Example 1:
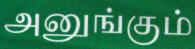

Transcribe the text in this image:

அனுங்கும்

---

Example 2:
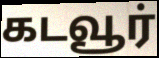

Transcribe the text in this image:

கடவூர்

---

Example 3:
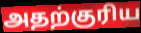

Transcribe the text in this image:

அதற்குரிய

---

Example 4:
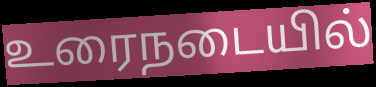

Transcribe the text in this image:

உரைநடையில்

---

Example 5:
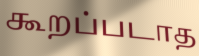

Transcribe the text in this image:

கூறப்படாத